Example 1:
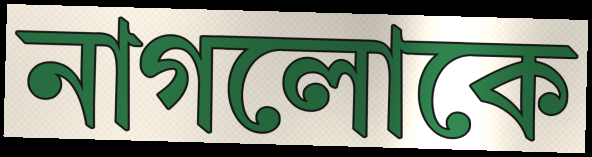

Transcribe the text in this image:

নাগলোকে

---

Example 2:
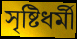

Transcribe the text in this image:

সৃষ্টিধর্মী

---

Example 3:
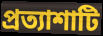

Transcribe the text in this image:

প্রত্যাশাটি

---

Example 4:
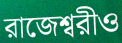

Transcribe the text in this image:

রাজেশ্বরীও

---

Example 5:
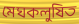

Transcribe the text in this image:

মেঘকলুষিত